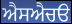
ਐਸਐਚੳ